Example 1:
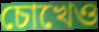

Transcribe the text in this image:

চোখেও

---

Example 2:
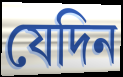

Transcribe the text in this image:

যেদিন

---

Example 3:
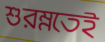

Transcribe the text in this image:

শুরম্নতেই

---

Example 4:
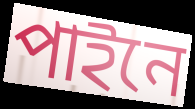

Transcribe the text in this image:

পাইনে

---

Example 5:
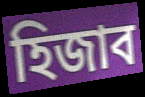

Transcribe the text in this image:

হিজাব